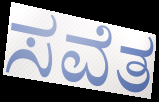
ಸವೆತ